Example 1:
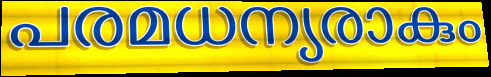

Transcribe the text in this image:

പരമധന്യരാകും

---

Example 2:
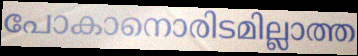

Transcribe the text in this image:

പോകാനൊരിടമില്ലാത്ത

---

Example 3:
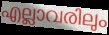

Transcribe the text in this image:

എല്ലാവരിലും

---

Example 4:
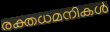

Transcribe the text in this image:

രക്തധമനികൾ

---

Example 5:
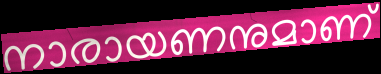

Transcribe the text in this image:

നാരായണനുമാണ്